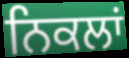
ਨਿਕਲਾਂ